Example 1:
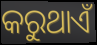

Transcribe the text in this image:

କରୁଥାଏଁ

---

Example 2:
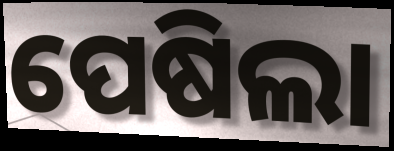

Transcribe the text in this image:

ପେଷିଲା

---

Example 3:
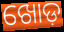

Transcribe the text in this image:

ଖୋଡ଼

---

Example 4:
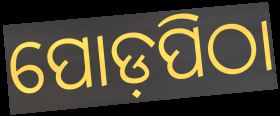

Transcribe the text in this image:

ପୋଡ଼ପିଠା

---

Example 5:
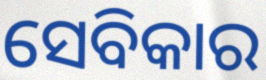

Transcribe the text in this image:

ସେବିକାର